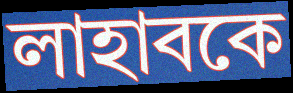
লাহাবকে